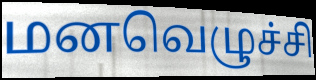
மனவெழுச்சி